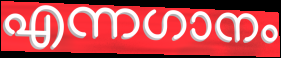
എന്നഗാനം